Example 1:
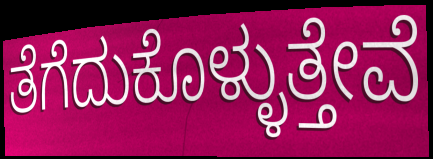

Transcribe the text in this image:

ತೆಗೆದುಕೊಳ್ಳುತ್ತೇವೆ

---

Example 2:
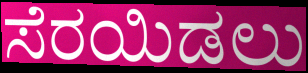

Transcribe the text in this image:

ಸೆರಯಿಡಲು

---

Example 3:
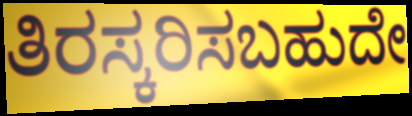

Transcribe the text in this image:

ತಿರಸ್ಕರಿಸಬಹುದೇ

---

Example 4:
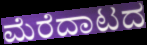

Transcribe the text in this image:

ಮೆರೆದಾಟದ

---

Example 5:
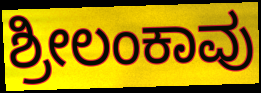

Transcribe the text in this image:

ಶ್ರೀಲಂಕಾವು